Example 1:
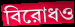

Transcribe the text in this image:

বিরোধও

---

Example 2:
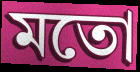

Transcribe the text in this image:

মতো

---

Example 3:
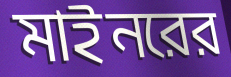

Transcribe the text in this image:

মাইনরের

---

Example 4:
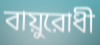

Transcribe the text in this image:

বায়ুরোধী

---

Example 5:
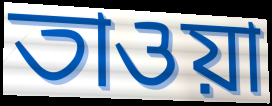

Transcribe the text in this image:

তাওয়া